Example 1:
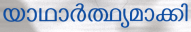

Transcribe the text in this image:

യാഥാർത്ഥ്യമാക്കി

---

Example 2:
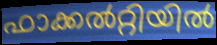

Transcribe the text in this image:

ഫാക്കൽറ്റിയിൽ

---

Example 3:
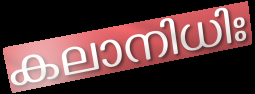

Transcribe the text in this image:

കലാനിധിഃ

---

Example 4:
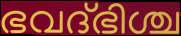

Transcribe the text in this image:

ഭവദ്ഭിശ്ച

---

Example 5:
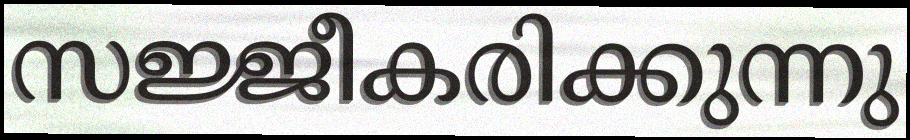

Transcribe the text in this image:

സജ്ജീകരിക്കുന്നു